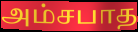
அம்சபாத